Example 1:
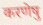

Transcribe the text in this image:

करणेषु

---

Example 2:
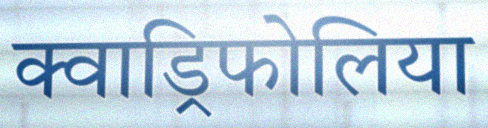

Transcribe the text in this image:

क्वाड्रिफोलिया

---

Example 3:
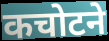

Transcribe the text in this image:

कचोटने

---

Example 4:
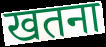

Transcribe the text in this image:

खतना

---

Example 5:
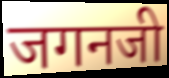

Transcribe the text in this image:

जगनजी